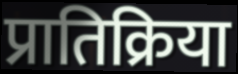
प्रातिक्रिया